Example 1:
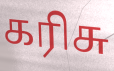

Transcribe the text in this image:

கரிசு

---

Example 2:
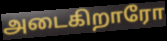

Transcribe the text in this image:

அடைகிறாரோ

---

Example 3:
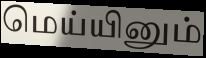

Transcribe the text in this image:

மெய்யினும்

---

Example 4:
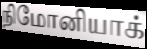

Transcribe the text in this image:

நிமோனியாக்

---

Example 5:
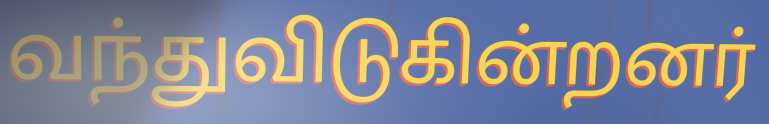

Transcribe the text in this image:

வந்துவிடுகின்றனர்